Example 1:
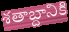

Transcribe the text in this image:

శతాబ్దానికి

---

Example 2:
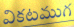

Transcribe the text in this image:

వికటముగ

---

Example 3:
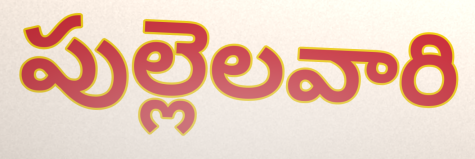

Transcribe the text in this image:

పుల్లెలవారి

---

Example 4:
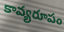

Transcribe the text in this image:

కావ్యరూపం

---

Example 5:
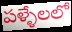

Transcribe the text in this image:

పళ్ళేలలో